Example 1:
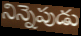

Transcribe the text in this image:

నిన్నెపుడు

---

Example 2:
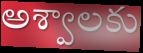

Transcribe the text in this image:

అశ్వాలకు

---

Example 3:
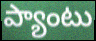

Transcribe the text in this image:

ప్యాంటు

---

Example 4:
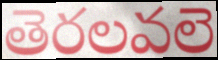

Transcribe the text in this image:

తెరలవలె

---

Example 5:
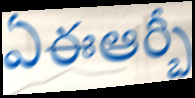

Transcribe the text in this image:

ఏఈఆర్బీ